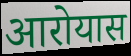
आरोयास